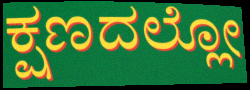
ಕ್ಷಣದಲ್ಲೋ